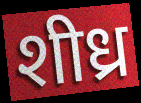
शीध्र